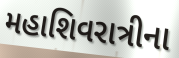
મહાશિવરાત્રીના